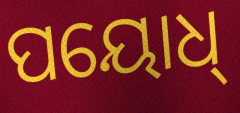
ପୟୋଧ୍